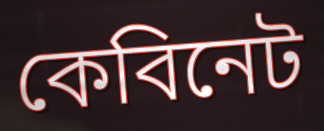
কেবিনেট